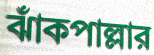
ঝাঁকপাল্লার